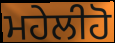
ਮਹੇਲੀਹੋ